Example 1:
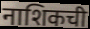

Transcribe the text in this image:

नाशिकची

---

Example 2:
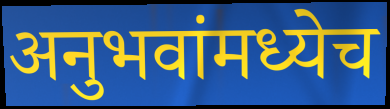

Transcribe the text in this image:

अनुभवांमध्येच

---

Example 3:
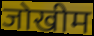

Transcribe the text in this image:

जोखीम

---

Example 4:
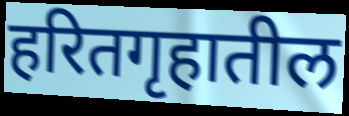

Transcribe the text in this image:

हरितगृहातील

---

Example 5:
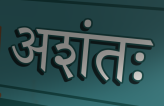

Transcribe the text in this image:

अशंतः